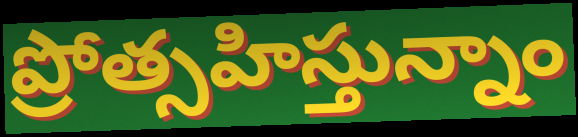
ప్రోత్సహిస్తున్నాం